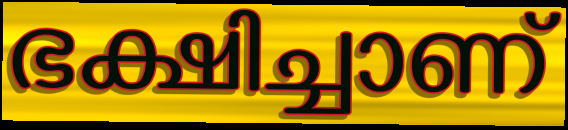
ഭക്ഷിച്ചാണ്